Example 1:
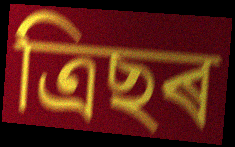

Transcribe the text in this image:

ত্ৰিছৰ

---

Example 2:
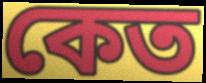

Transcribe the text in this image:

কেত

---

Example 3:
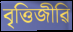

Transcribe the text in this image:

বৃত্তিজীৱি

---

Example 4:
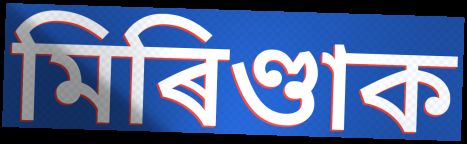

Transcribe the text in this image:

মিৰিণ্ডাক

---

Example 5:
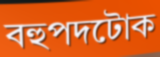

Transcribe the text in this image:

বহুপদটোক